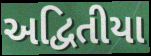
અદ્વિતીયા